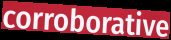
corroborative